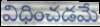
విధించడమే